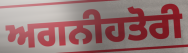
ਅਗਨੀਹਤੋਰੀ